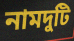
নামদুটি